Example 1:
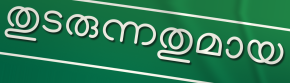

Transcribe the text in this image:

തുടരുന്നതുമായ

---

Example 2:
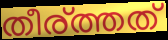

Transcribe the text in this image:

തീര്ത്തത്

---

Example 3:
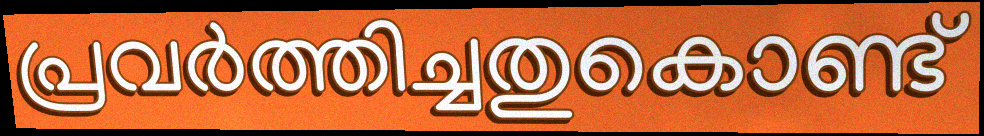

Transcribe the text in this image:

പ്രവർത്തിച്ചതുകൊണ്ട്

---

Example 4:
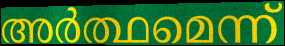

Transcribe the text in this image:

അർത്ഥമെന്ന്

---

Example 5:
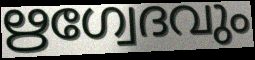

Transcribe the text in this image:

ഋഗ്വേദവും